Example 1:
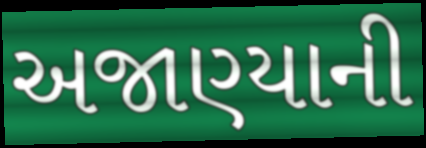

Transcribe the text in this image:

અજાણ્યાની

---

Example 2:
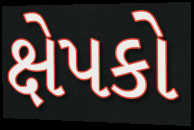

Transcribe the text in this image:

ક્ષેપકો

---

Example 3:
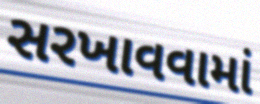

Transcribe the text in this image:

સરખાવવામાં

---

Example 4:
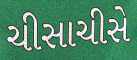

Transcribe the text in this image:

ચીસાચીસે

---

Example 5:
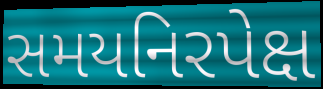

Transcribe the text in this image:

સમયનિરપેક્ષ